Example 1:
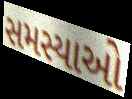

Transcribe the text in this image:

સમસ્યાઓ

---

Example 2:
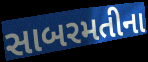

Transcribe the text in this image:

સાબરમતીના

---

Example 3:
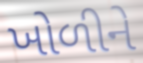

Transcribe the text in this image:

ખોળીને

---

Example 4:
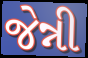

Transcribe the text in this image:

જેન્ની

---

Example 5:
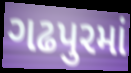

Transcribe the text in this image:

ગઢપુરમાં